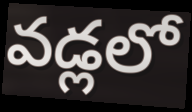
వడ్లలో